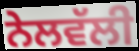
ਨੇਲਵੱਲੀ